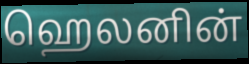
ஹெலனின்